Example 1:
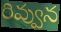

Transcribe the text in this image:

రివ్వున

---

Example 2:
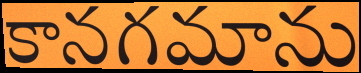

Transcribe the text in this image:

కానగమాను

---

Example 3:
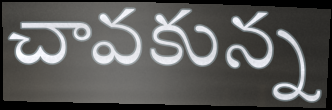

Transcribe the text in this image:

చావకున్న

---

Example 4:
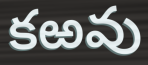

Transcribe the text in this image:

కఱవు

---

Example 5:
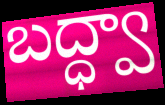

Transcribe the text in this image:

బద్ధ్వా